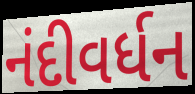
નંદીવર્ધન